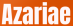
Azariae